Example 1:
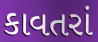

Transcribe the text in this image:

કાવતરાં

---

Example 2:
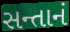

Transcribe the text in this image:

સન્તાનં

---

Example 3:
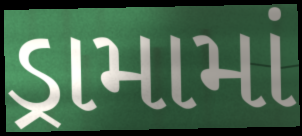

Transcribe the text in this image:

ડ્રામામાં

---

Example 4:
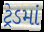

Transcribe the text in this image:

ટ્રેડમાં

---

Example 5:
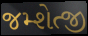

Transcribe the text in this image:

જમ્શેત્જી